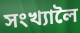
সংখ্যালৈ